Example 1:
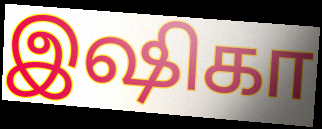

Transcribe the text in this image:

இஷிகா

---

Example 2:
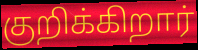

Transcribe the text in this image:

குறிக்கிறார்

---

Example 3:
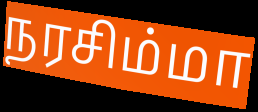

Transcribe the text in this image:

நரசிம்மா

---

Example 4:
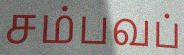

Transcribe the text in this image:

சம்பவப்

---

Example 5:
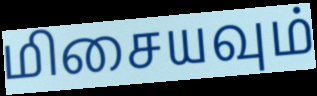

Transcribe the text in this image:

மிசையவும்